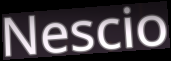
Nescio